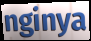
nginya